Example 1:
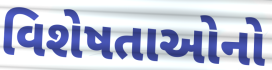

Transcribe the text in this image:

વિશેષતાઓનો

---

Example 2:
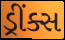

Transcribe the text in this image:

ડ્રીંક્સ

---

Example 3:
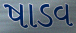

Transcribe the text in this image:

ષાડવ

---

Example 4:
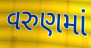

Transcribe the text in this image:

વરુણમાં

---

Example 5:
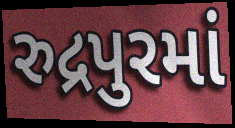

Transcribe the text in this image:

રુદ્રપુરમાં